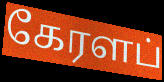
கேரளப்